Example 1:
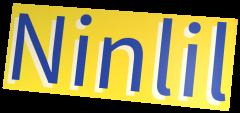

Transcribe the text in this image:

Ninlil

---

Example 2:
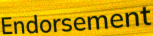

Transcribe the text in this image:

Endorsement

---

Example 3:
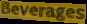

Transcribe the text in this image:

Beverages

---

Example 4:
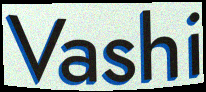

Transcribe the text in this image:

Vashi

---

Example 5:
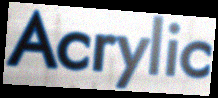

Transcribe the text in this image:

Acrylic